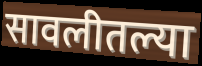
सावलीतल्या